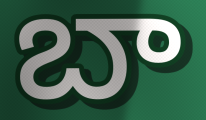
బా